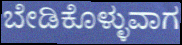
ಬೇಡಿಕೊಳ್ಳುವಾಗ